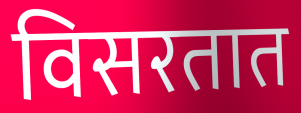
विसरतात